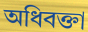
অধিবক্তা